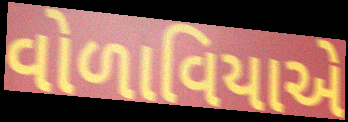
વોળાવિયાએ